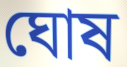
ঘোষ